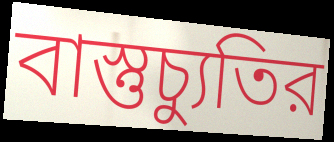
বাস্তুচ্যুতির